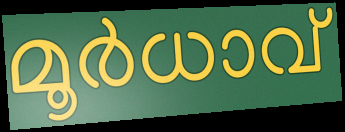
മൂർധാവ്